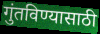
गुंतविण्यासाठी